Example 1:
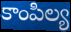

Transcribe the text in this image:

కాంపిల్య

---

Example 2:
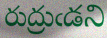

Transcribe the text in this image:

రుద్రుఁడని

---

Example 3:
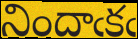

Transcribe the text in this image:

నిందాఁకఁ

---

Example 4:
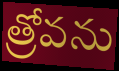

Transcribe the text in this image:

త్రోవను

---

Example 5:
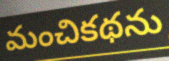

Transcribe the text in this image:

మంచికథను